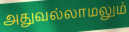
அதுவல்லாமலும்